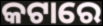
କଟାରେ